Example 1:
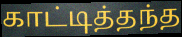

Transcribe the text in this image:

காட்டித்தந்த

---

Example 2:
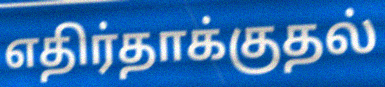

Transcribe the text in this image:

எதிர்தாக்குதல்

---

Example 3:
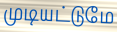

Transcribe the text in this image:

முடியட்டுமே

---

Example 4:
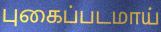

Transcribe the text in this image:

புகைப்படமாய்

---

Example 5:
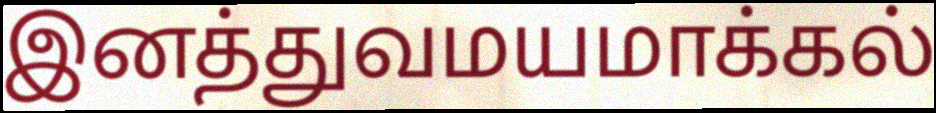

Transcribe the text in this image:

இனத்துவமயமாக்கல்